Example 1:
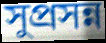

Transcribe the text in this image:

সুপ্রসন্ন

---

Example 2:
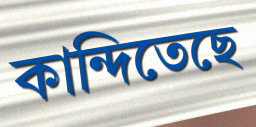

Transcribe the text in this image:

কান্দিতেছে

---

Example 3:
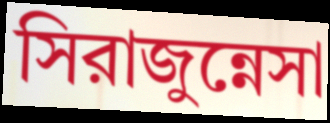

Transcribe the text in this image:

সিরাজুন্নেসা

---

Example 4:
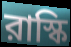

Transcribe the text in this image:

রাস্কি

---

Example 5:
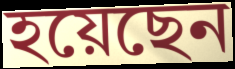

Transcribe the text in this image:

হয়েছেন